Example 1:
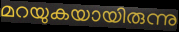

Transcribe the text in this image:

മറയുകയായിരുന്നു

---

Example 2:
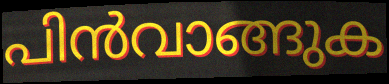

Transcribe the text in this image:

പിൻവാങ്ങുക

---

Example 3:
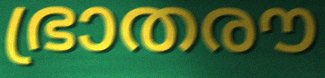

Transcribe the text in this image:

ഭ്രാതരൗ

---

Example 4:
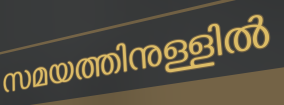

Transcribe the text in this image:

സമയത്തിനുള്ളിൽ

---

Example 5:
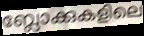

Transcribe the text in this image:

ബ്ലോക്കുകളിലെ